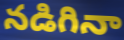
నడిగినా